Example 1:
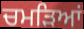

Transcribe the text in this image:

ਚਮੜਿਆਂ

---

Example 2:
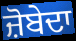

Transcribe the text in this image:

ਜ਼ੋਬੇਦਾ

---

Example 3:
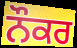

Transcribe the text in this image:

ਨੌਕਰ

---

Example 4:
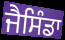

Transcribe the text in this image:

ਜੈਸਿੰਡਾ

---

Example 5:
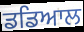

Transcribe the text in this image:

ਡਡਿਆਲ